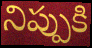
నిప్పుకి